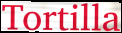
Tortilla